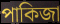
পাকিজা